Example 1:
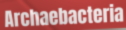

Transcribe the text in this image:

Archaebacteria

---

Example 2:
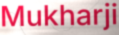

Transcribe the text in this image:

Mukharji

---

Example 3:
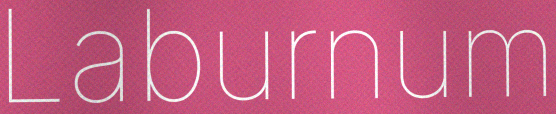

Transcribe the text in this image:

Laburnum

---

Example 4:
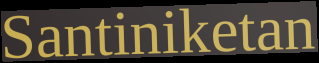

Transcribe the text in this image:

Santiniketan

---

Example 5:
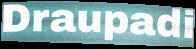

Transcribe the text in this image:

Draupadi